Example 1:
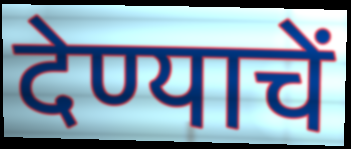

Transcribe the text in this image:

देण्याचें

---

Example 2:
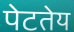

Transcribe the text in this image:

पेटतेय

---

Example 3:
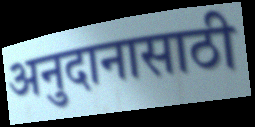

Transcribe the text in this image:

अनुदानासाठी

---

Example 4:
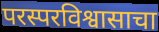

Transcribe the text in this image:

परस्परविश्वासाचा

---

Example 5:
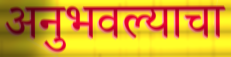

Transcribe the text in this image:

अनुभवल्याचा